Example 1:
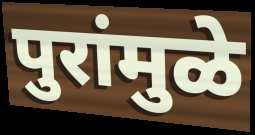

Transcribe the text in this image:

पुरांमुळे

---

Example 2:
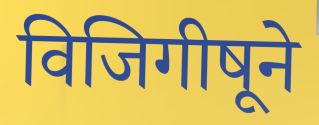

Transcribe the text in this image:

विजिगीषूने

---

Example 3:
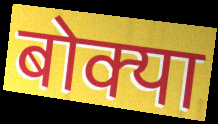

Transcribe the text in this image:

बोक्या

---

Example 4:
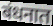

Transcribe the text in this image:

बंधनात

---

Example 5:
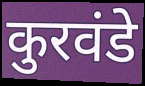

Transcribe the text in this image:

कुरवंडे